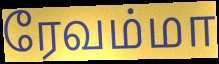
ரேவம்மா